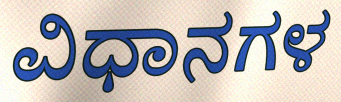
ವಿಧಾನಗಳ